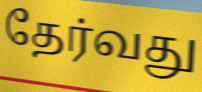
தேர்வது